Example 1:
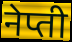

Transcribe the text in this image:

नेप्ती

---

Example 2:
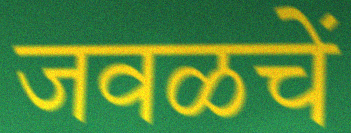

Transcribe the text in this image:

जवळचें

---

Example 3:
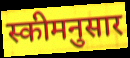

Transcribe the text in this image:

स्कीमनुसार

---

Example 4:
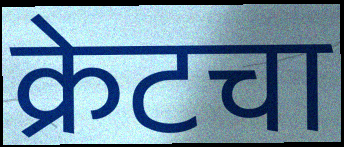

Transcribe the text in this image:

क्रेटचा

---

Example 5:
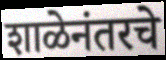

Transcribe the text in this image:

शाळेनंतरचे